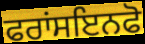
ਫਰਾਂਸਇਨਫੋ